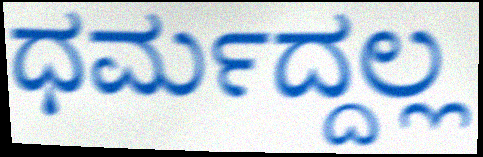
ಧರ್ಮದ್ದಲ್ಲ